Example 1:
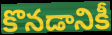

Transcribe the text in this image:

కొనడానికీ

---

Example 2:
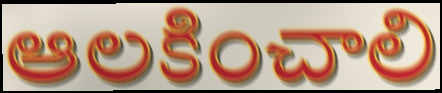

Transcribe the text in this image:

ఆలకించాలి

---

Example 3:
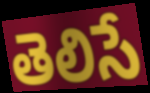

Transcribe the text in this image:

తెలిసే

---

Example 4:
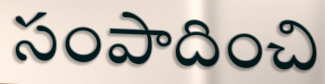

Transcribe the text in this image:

సంపాదించి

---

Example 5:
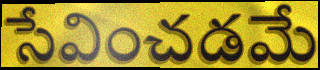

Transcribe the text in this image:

సేవించడమే